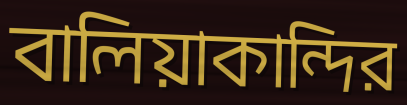
বালিয়াকান্দির